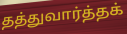
தத்துவார்த்தக்